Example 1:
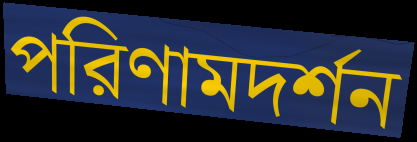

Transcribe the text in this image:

পরিণামদর্শন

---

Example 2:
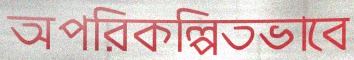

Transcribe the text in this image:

অপরিকল্পিতভাবে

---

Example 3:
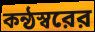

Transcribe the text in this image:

কন্ঠস্বরের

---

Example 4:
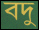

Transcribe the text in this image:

বদু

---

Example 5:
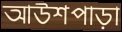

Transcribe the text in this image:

আউশপাড়া